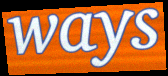
ways